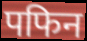
पफिन